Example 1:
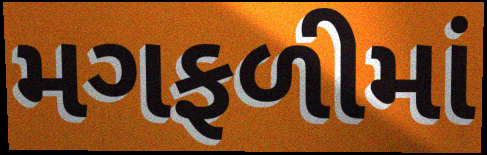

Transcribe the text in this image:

મગફળીમાં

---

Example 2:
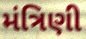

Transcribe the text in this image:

મંત્રિણી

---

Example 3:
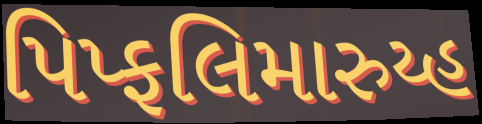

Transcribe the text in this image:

પિપ્ફલિમારુય્હ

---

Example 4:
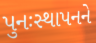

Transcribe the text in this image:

પુનઃસ્થાપનને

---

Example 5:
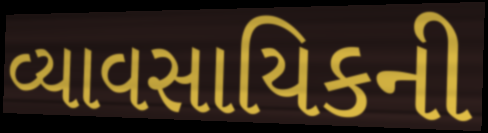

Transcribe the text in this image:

વ્યાવસાયિકની